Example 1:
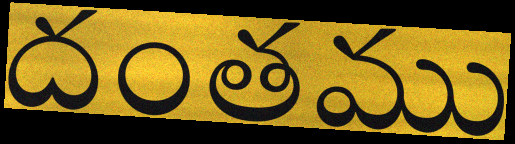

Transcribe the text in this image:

దంతము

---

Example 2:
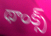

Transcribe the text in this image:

థాంక్స్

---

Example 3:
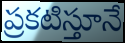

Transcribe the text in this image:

ప్రకటిస్తూనే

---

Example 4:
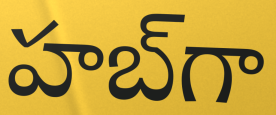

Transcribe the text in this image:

హబ్‌గా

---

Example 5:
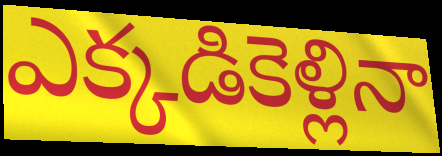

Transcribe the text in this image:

ఎక్కడికెళ్లినా